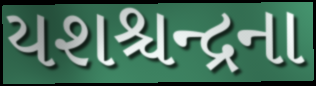
યશશ્ચન્દ્રના